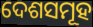
ଦେଶସମୂହ